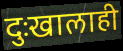
दुःखालाही